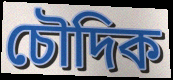
চৌদিক